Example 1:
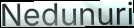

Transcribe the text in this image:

Nedunuri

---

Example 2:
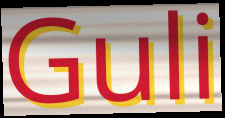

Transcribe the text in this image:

Guli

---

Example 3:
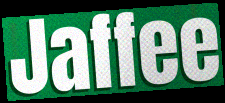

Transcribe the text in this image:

Jaffee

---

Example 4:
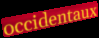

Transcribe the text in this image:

occidentaux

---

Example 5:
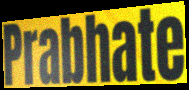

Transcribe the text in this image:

Prabhate